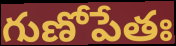
గుణోపేతః